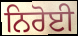
ਨਿਰੋਈ